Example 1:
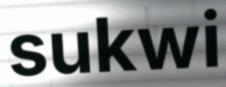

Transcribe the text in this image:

sukwi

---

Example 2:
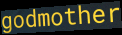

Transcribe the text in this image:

godmother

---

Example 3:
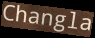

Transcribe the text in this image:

Changla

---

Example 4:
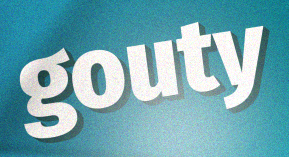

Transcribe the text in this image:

gouty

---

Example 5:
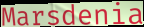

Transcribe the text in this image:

Marsdenia